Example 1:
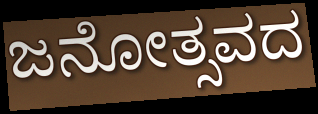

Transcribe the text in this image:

ಜನೋತ್ಸವದ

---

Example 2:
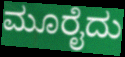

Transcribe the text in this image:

ಮೂರೈದು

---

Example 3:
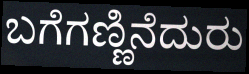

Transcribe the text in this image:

ಬಗೆಗಣ್ಣಿನೆದುರು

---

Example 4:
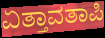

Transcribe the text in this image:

ಏತ್ತಾವತಾಪಿ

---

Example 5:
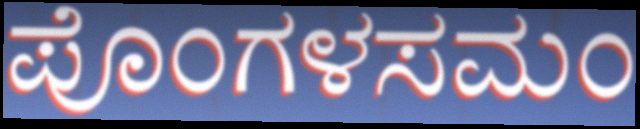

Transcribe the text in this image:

ಪೊಂಗಳಸಮಂ